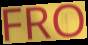
FRO